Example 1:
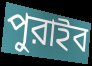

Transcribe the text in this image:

পুরাইব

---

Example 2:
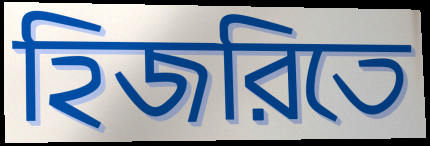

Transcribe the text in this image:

হিজরিতে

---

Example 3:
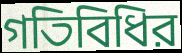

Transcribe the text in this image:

গতিবিধির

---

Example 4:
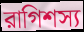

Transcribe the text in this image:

রাগিশস্য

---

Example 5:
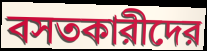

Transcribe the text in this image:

বসতকারীদের